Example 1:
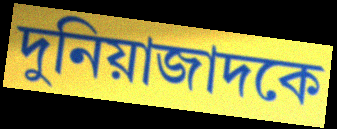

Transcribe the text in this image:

দুনিয়াজাদকে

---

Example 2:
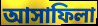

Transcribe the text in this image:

আসাফিলা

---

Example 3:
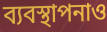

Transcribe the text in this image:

ব্যবস্থাপনাও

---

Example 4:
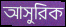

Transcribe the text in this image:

আসুরিক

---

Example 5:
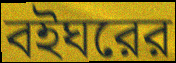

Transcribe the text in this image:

বইঘরের